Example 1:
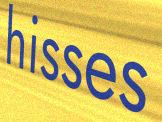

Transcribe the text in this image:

hisses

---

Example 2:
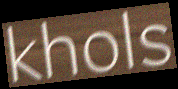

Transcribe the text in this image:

khols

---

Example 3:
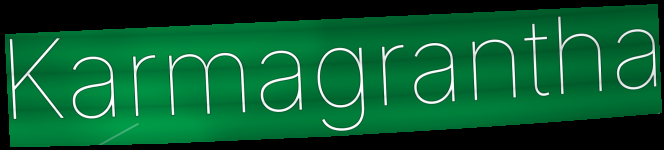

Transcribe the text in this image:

Karmagrantha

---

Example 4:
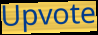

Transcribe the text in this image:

Upvote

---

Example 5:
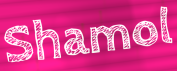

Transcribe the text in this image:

Shamol